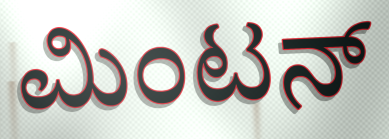
ಮಿಂಟನ್